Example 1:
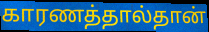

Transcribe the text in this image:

காரணத்தால்தான்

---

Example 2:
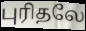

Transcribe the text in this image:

புரிதலே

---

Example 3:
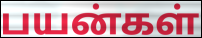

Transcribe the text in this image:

பயன்கள்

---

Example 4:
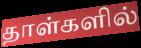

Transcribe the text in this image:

தாள்களில்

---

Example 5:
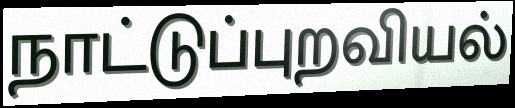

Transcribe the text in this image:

நாட்டுப்புறவியல்